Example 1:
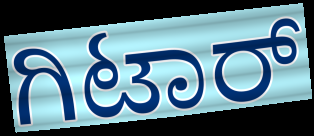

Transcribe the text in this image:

ಗಿಟಾರ್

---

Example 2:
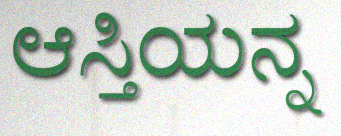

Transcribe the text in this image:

ಆಸ್ತಿಯನ್ನ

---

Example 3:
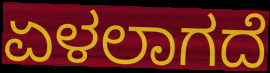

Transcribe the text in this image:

ಏಳಲಾಗದೆ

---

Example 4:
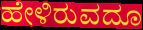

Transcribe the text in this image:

ಹೇಳಿರುವದೂ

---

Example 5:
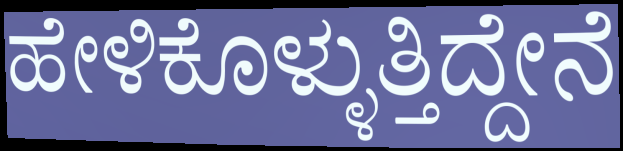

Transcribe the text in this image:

ಹೇಳಿಕೊಳ್ಳುತ್ತಿದ್ದೇನೆ